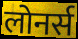
लोनर्स